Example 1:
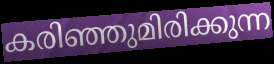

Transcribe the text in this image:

കരിഞ്ഞുമിരിക്കുന്ന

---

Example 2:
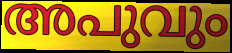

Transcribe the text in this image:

അപുവും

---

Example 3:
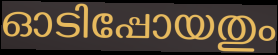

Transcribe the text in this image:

ഓടിപ്പോയതും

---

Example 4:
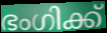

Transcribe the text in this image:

ഭംഗിക്ക്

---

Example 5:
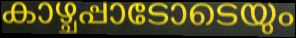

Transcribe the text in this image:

കാഴ്ചപ്പാടോടെയും